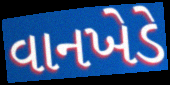
વાનખેડે